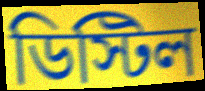
ডিস্টিল